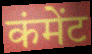
कंमेंट